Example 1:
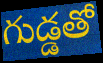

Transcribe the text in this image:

గుడ్డతో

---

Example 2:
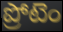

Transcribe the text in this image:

ప్రోటెం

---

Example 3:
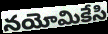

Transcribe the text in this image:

నయోమికేసి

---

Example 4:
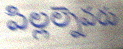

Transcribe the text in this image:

పిల్లల్నెవరు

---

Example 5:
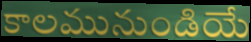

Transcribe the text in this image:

కాలమునుండియే